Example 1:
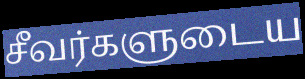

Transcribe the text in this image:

சீவர்களுடைய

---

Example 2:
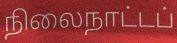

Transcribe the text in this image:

நிலைநாட்டப்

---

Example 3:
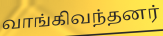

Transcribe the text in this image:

வாங்கிவந்தனர்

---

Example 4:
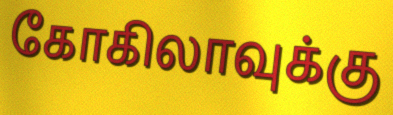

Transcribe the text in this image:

கோகிலாவுக்கு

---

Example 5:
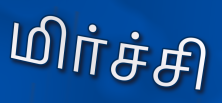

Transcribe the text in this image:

மிர்ச்சி